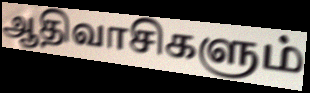
ஆதிவாசிகளும்